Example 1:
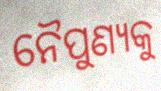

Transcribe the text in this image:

ନୈପୁଣ୍ୟକୁ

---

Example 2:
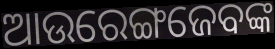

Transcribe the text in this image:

ଆଉରେଙ୍ଗଜେବଙ୍କ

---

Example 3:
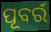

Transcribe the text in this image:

ପୂବର୍ର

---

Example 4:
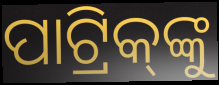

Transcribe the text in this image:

ପାଟ୍ରିକ୍‌ଙ୍କୁ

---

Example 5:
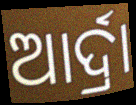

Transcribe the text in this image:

ଆର୍ଦ୍ରା